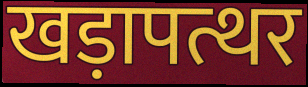
खड़ापत्थर